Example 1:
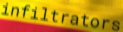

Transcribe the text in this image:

infiltrators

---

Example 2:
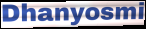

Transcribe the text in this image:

Dhanyosmi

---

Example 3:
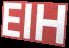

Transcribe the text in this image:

EIH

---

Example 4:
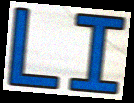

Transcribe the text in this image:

LI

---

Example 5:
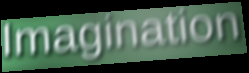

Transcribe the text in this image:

Imagination